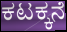
ಕಟಕ್ಕನೆ